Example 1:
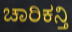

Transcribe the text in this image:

ಚಾರಿಕನ್ತಿ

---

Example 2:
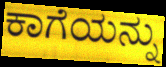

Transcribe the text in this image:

ಕಾಗೆಯನ್ನು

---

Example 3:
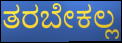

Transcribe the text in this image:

ತರಬೇಕಲ್ಲ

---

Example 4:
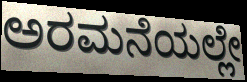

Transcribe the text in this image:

ಅರಮನೆಯಲ್ಲೇ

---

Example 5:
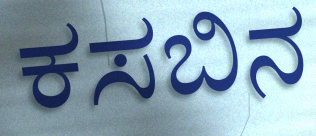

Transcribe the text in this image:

ಕಸಬಿನ